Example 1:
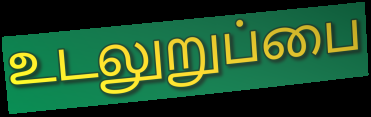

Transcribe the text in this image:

உடலுறுப்பை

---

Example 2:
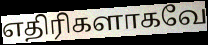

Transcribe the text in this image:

எதிரிகளாகவே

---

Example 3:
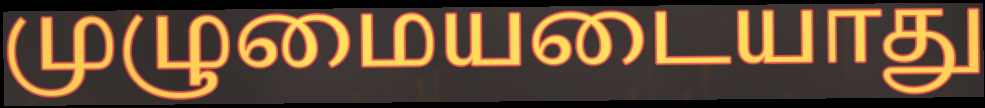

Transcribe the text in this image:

முழுமையடையாது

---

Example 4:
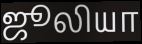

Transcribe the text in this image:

ஜூலியா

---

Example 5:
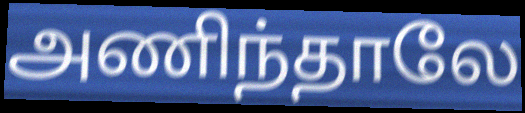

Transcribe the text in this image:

அணிந்தாலே